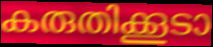
കരുതിക്കൂടാ